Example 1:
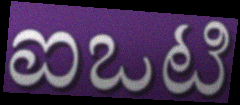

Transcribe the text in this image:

ಐಒಟಿ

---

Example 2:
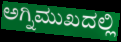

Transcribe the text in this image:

ಅಗ್ನಿಮುಖದಲ್ಲಿ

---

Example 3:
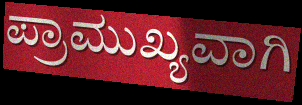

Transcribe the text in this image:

ಪ್ರಾಮುಖ್ಯವಾಗಿ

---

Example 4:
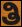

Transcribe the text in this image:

ತಿ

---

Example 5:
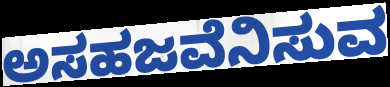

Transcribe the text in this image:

ಅಸಹಜವೆನಿಸುವ